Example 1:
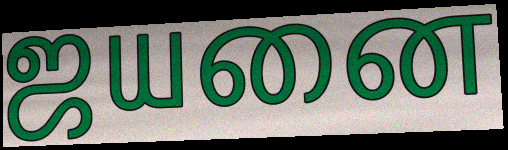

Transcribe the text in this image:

ஜயனை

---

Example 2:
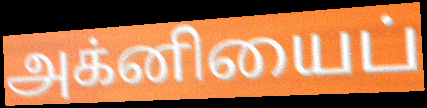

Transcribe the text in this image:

அக்னியைப்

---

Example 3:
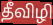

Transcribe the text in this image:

தீவிழி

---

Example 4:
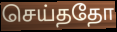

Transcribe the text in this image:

செய்ததோ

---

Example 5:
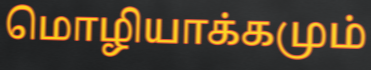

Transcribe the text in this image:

மொழியாக்கமும்